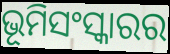
ଭୂମିସଂସ୍କାରର